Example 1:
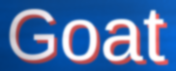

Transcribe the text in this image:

Goat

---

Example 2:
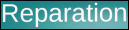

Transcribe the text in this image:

Reparation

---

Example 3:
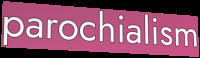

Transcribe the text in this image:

parochialism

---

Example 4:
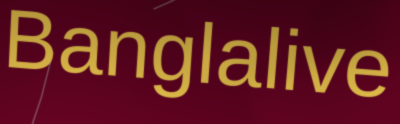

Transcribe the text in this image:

Banglalive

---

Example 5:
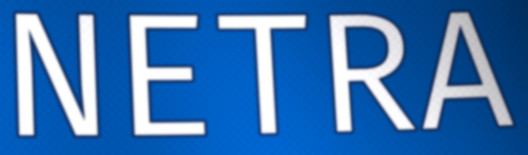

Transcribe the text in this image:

NETRA